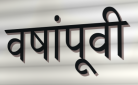
वषांपूवी